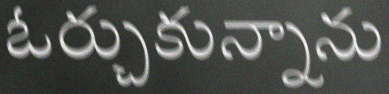
ఓర్చుకున్నాను